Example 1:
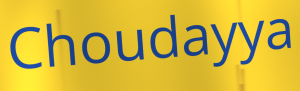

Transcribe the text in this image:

Choudayya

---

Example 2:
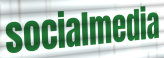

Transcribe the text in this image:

socialmedia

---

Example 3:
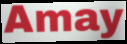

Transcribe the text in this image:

Amay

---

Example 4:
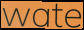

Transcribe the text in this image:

wate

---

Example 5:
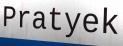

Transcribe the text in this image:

Pratyek